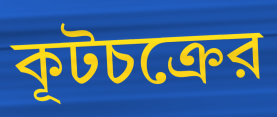
কূটচক্রের